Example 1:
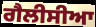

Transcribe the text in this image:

ਗੈਲੀਸੀਆ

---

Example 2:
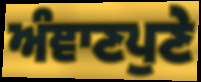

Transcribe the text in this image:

ਅੰਞਾਣਪੁਣੇ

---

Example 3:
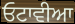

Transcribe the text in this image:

ਓਟਾਵੀਆ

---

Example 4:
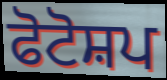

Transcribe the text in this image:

ਫੋਟੋਸ਼ਪ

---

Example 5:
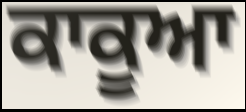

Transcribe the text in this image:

ਕਾਕੂਆ